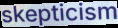
skepticism